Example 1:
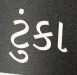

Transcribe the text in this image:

ટુંકા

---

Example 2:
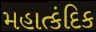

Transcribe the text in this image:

મહાત્કંદિક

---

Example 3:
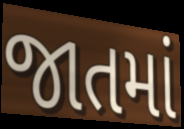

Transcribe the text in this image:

જાતમાં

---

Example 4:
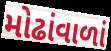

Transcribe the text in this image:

મોઢાંવાળાં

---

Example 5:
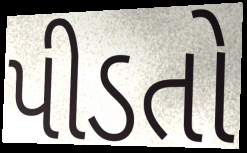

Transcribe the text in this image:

પીડતો